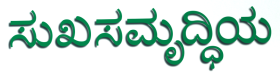
ಸುಖಸಮೃದ್ಧಿಯ